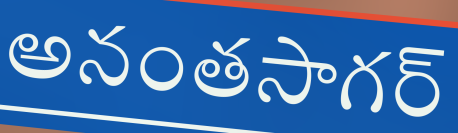
అనంతసాగర్